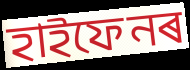
হাইফেনৰ